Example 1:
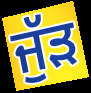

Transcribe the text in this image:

ਜੁੱੜ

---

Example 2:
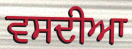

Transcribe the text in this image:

ਵਸਦੀਆ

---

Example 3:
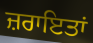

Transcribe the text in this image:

ਜ਼ਰਾਇਤਾਂ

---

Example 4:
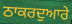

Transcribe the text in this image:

ਠਾਕਰਦੁਆਰੇ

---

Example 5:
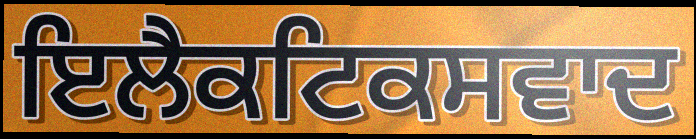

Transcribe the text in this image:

ਇਲੈਕਟਿਕਸਵਾਦ